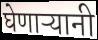
घेणाऱ्यानी